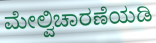
ಮೇಲ್ವಿಚಾರಣೆಯಡಿ